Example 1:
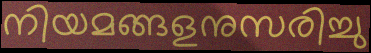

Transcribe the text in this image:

നിയമങ്ങളനുസരിച്ചു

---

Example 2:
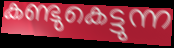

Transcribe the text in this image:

കണ്ടുകെട്ടുന്ന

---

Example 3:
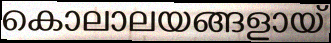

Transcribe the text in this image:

കൊലാലയങ്ങളായ്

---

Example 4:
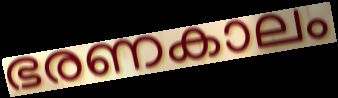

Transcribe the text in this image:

ഭരണകാലം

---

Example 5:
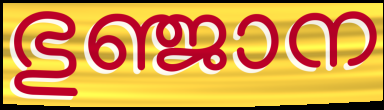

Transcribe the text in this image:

ഭുഞ്ജാന